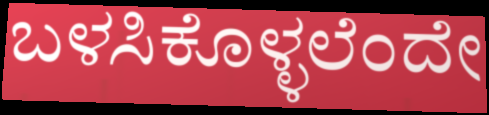
ಬಳಸಿಕೊಳ್ಳಲೆಂದೇ